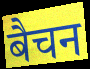
बैचन